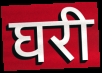
घरी